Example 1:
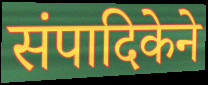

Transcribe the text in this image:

संपादिकेने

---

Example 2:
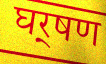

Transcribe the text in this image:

घर्षण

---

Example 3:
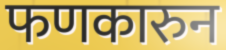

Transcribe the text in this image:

फणकारुन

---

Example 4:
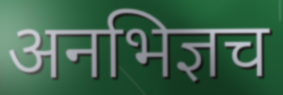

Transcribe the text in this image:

अनभिज्ञच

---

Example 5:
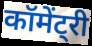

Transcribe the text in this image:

कॉमेंट्री